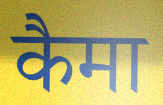
कैमा